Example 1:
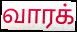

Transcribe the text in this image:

வாரக்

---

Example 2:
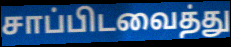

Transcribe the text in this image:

சாப்பிடவைத்து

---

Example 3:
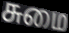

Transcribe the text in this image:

சுமை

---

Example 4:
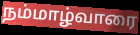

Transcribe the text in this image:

நம்மாழ்வாரை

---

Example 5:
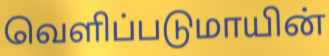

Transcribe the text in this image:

வெளிப்படுமாயின்